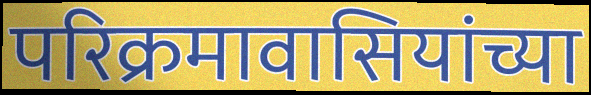
परिक्रमावासियांच्या